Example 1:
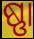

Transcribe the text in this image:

ଷ୍ଣା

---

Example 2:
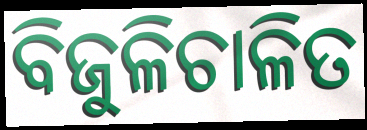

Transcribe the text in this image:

ବିଜୁଳିଚାଳିତ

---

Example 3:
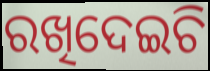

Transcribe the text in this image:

ରଖିଦେଇଚି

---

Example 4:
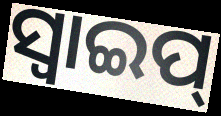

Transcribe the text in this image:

ସ୍ୱାଇପ୍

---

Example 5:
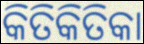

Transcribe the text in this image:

କିତିକିତିକା